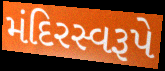
મંદિરસ્વરૂપે